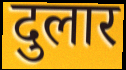
दुलार